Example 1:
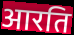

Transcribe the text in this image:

आरति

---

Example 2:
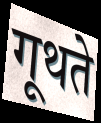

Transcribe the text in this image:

गूथते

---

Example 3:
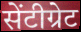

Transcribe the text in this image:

सेंटीग्रेट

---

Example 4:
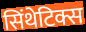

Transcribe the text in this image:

सिंथेटिक्स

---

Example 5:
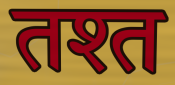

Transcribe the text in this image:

तश्त